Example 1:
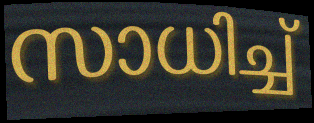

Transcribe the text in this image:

സാധിച്ച്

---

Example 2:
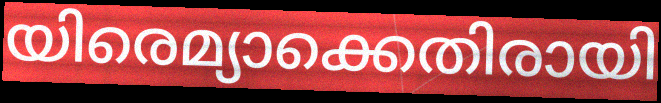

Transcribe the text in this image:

യിരെമ്യാക്കെതിരായി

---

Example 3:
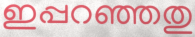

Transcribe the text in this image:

ഇപ്പറഞ്ഞതു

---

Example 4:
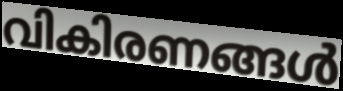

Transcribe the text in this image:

വികിരണങ്ങൾ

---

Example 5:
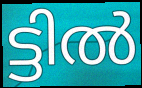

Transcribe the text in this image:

ട്ടിൽ